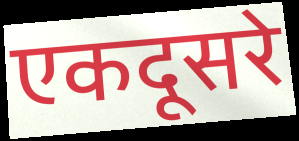
एकदूसरे